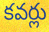
కవర్లు